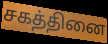
சகத்தினை